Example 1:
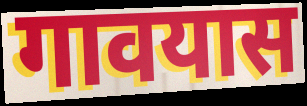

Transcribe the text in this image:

गावयास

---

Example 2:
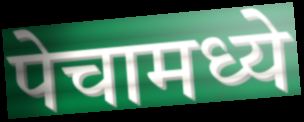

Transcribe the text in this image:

पेचामध्ये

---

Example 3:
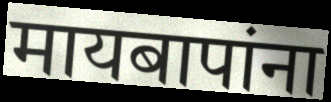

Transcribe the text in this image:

मायबापांना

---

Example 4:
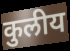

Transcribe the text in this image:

कुलीय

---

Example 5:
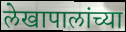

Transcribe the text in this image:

लेखापालांच्या